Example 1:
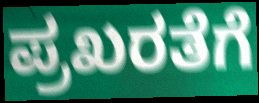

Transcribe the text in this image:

ಪ್ರಖರತೆಗೆ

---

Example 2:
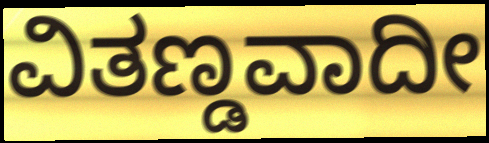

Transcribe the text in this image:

ವಿತಣ್ಡವಾದೀ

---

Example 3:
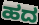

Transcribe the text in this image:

ಹದ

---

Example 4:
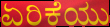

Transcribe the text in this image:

ಏರಿಕೆಯು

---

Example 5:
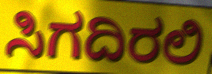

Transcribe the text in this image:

ಸಿಗದಿರಲಿ